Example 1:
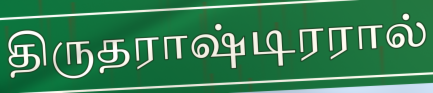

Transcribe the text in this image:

திருதராஷ்டிரரால்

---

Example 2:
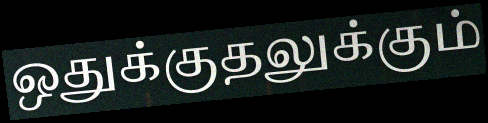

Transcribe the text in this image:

ஒதுக்குதலுக்கும்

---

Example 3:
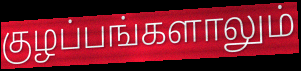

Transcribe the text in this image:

குழப்பங்களாலும்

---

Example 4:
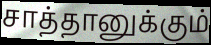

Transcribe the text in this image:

சாத்தானுக்கும்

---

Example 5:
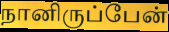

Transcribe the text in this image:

நானிருப்பேன்